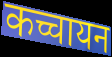
कच्चायन